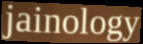
jainology